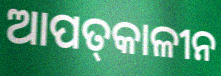
ଆପତ୍‌କାଳୀନ